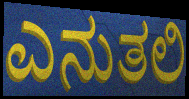
ಎನುತಲಿ